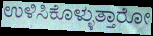
ಉಳಿಸಿಕೊಳ್ಳುತ್ತಾರೋ